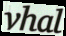
vhal